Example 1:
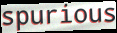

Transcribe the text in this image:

spurious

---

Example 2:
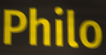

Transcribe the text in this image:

Philo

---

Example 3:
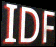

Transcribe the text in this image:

IDF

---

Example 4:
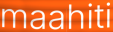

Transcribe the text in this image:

maahiti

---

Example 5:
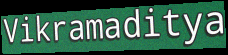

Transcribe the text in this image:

Vikramaditya